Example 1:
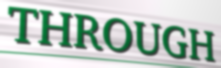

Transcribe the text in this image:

THROUGH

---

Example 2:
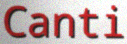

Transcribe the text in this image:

Canti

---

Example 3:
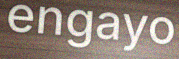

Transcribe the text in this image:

engayo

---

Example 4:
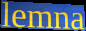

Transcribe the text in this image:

lemna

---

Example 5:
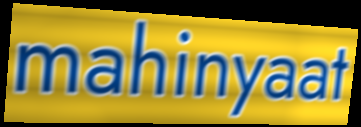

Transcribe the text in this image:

mahinyaat